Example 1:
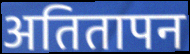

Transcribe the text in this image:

अतितापन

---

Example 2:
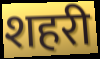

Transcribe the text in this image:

शहरी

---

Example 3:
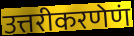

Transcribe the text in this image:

उत्तरीकरणेणं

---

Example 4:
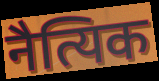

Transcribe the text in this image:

नैत्यिक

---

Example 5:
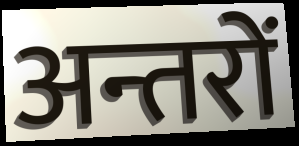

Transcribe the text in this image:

अन्तरों